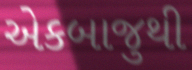
એકબાજુથી